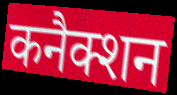
कनैक्शन